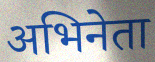
अभिनेता